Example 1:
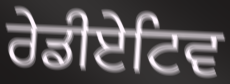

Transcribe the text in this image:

ਰੇਡੀਏਟਿਵ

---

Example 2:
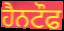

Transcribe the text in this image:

ਹੈਨਟੌਫ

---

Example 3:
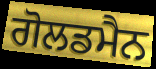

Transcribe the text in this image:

ਗੋਲਡਮੈਨ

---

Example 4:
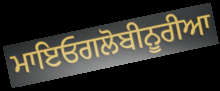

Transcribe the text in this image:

ਮਾਇਓਗਲੋਬੀਨੂਰੀਆ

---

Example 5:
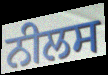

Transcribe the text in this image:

ਨੀਲਸ